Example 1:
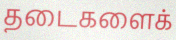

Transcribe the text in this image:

தடைகளைக்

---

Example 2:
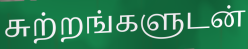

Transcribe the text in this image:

சுற்றங்களுடன்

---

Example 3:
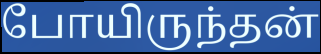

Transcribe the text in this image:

போயிருந்தன்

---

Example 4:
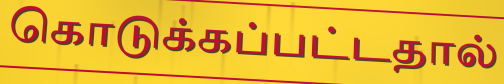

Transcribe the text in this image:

கொடுக்கப்பட்டதால்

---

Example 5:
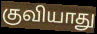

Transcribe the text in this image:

குவியாது